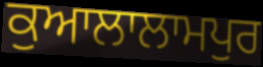
ਕੁਆਲਾਲਾਮਪੁਰ